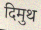
दिमुथ